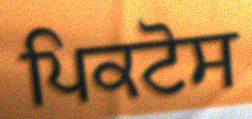
ਪਿਕਟੋਸ